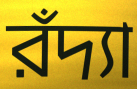
রঁদ্যা